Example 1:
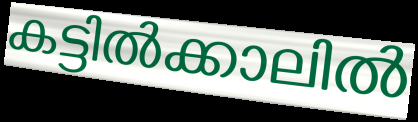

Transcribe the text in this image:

കട്ടിൽക്കാലിൽ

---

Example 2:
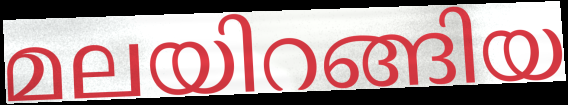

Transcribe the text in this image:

മലയിറങ്ങിയ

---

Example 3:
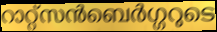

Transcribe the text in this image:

റാറ്റ്സൻബെർഗ്ഗറുടെ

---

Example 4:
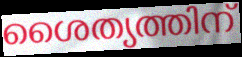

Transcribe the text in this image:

ശൈത്യത്തിന്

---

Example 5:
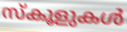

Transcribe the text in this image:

സ്കൂളുകൾ